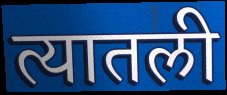
त्यातली